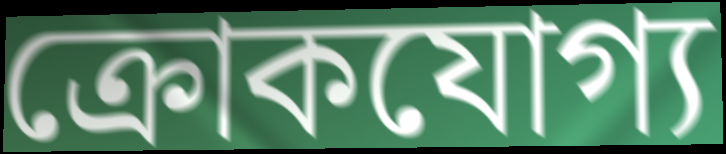
ক্রোকযোগ্য